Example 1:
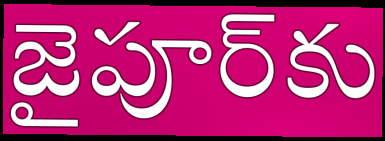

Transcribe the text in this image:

జైపూర్‌కు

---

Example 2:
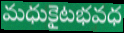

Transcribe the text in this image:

మధుకైటభవధ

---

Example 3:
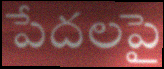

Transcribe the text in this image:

పేదలపై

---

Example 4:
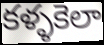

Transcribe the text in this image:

కళ్ళకెలా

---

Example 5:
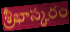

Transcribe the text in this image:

శ్రీభాస్కరం